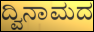
ದ್ವಿನಾಮದ